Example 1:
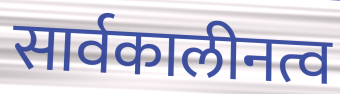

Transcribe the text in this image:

सार्वकालीनत्व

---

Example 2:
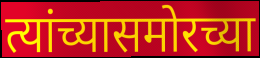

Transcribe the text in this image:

त्यांच्यासमोरच्या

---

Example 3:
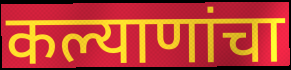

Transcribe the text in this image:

कल्याणांचा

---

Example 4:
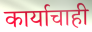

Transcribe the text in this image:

कार्याचाही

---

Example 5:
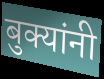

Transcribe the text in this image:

बुक्यांनी